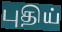
புதிய்